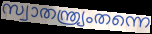
സ്വാതന്ത്ര്യംതന്നെ